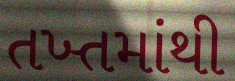
તખ્તમાંથી